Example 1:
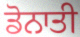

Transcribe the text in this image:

ਡੋਨਾਤੀ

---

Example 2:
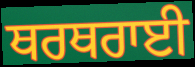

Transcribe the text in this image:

ਥਰਥਰਾਈ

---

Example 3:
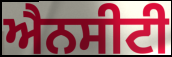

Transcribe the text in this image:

ਐਨਸੀਟੀ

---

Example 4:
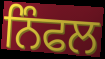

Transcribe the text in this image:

ਨਿੰਫਲ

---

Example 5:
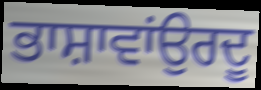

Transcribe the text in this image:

ਭਾਸ਼ਾਵਾਂਉਰਦੂ